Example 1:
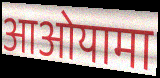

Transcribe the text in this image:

आओयामा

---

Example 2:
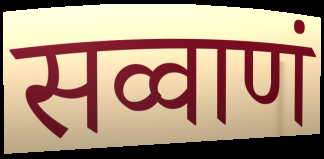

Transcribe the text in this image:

सव्वाणं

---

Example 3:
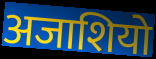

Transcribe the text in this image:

अजाशियो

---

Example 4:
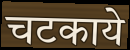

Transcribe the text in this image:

चटकाये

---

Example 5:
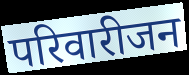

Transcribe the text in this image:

परिवारीजन